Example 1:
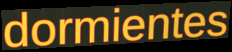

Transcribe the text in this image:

dormientes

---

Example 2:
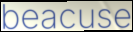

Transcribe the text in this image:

beacuse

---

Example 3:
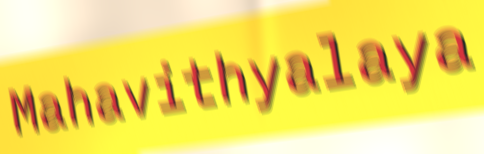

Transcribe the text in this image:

Mahavithyalaya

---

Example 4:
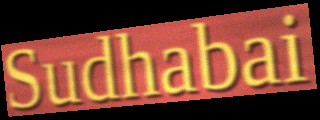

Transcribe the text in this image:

Sudhabai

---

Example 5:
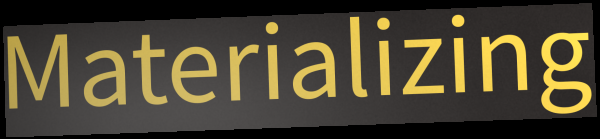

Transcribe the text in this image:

Materializing